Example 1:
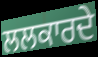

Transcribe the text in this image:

ਲਲਕਾਰਦੇ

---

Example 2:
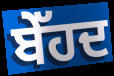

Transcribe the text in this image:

ਬੇੱਹਦ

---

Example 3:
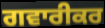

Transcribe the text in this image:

ਗਵਾਰੀਕਰ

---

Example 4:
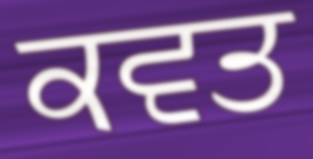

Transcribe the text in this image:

ਕਵਤ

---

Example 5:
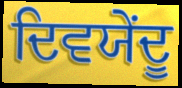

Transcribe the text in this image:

ਦਿਵਯੇਂਦੂ